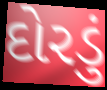
દોરડું